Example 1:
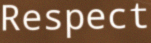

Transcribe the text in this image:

Respect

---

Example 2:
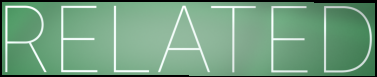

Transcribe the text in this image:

RELATED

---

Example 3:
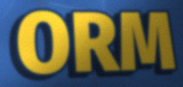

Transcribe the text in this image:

ORM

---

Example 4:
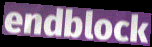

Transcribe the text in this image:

endblock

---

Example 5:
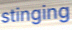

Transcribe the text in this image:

stinging